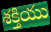
శక్తియు